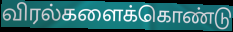
விரல்களைக்கொண்டு